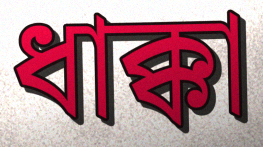
ধাক্কা